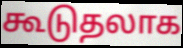
கூடுதலாக